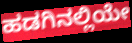
ಹಡಗಿನಲ್ಲಿಯೇ